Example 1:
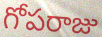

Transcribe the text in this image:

గోపరాజు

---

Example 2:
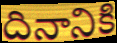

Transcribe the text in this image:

దినానికి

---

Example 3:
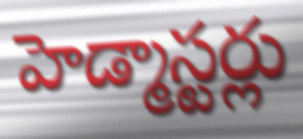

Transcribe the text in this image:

హెడ్మాస్టర్లు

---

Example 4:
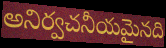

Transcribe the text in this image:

అనిర్వచనీయమైనది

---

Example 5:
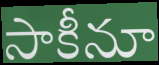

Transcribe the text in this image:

సాకీనూ